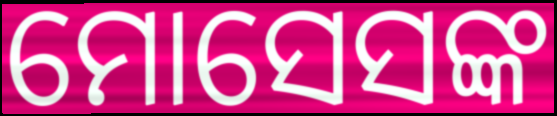
ମୋସେସଙ୍କ